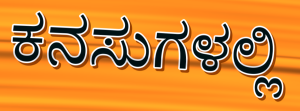
ಕನಸುಗಳಲ್ಲಿ